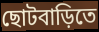
ছোটবাড়িতে